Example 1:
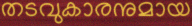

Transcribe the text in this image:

തടവുകാരനുമായ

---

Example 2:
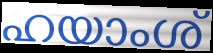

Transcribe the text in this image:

ഹയാംശ്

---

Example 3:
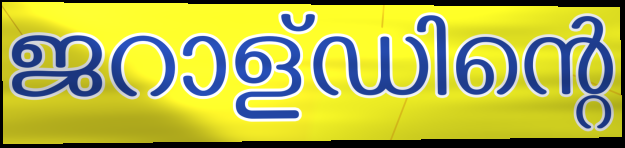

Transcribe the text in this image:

ജറാള്ഡിന്റെ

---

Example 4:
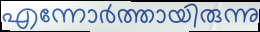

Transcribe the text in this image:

എന്നോർത്തായിരുന്നു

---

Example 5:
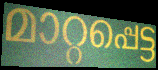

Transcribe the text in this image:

മാറ്റപ്പെട്ട